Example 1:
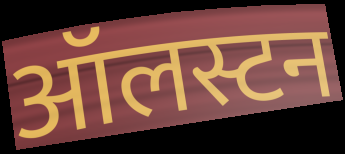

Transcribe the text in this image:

ऑलस्टन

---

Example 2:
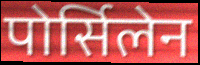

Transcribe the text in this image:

पोर्सिलेन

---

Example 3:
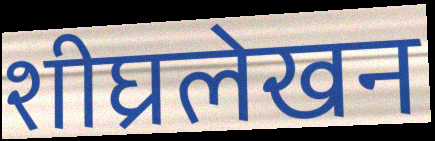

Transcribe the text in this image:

शीघ्रलेखन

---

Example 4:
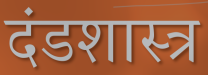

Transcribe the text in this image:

दंडशास्त्र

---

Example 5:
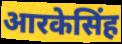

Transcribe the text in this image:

आरकेसिंह